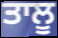
ਤਾਲੂ